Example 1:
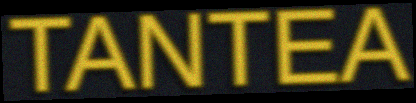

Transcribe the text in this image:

TANTEA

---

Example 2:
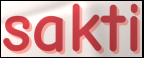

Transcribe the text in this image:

sakti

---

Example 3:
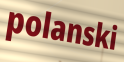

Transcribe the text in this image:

polanski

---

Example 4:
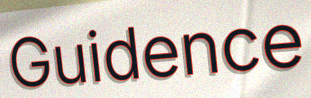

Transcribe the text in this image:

Guidence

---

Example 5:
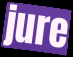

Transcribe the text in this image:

jure